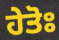
ਹੇਤੋਃ